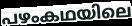
പഴംകഥയിലെ